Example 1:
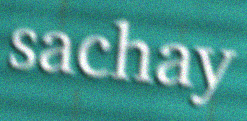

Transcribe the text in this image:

sachay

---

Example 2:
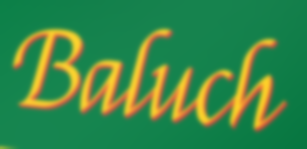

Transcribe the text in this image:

Baluch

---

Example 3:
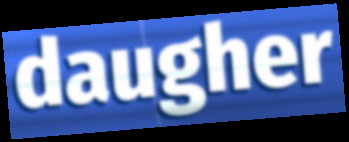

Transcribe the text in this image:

daugher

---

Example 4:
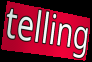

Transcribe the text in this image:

telling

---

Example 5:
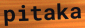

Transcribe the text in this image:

pitaka